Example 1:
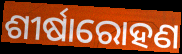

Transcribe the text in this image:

ଶୀର୍ଷାରୋହଣ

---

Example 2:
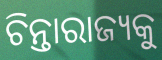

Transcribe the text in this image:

ଚିନ୍ତାରାଜ୍ୟକୁ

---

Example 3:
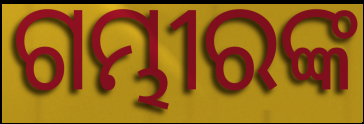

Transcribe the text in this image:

ଗମ୍ଭୀରଙ୍କ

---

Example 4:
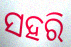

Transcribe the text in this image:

ସହରି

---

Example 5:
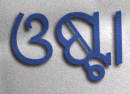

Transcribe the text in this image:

ଓଷ୍ଟା